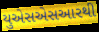
યુએસએસઆરથી